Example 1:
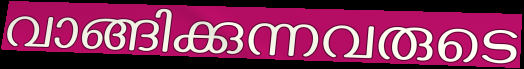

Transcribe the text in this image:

വാങ്ങിക്കുന്നവരുടെ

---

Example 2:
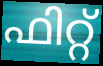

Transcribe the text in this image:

ഫിറ്റ്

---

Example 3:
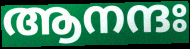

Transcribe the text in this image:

ആനന്ദഃ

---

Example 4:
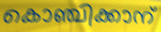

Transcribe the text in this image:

കൊഞ്ചിക്കാന്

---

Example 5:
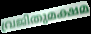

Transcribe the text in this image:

വ്രജിതുമക്ഷമ